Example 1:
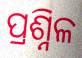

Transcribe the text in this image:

ପ୍ରଶ୍ନିଳ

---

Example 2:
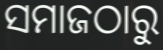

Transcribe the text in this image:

ସମାଜଠାରୁ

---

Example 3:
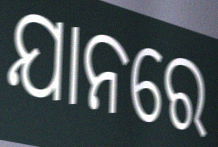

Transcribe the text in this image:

ଯାନରେ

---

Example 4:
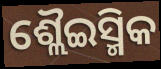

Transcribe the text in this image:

ଶ୍ଲୈଇସ୍ମିକ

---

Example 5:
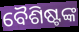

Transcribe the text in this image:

ବୈଶିଷ୍ଟଙ୍କ